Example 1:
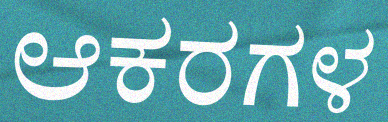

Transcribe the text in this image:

ಆಕರಗಳ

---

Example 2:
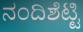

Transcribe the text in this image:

ನಂದಿಶೆಟ್ಟಿ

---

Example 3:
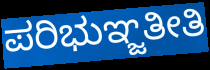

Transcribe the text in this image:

ಪರಿಭುಞ್ಜತೀತಿ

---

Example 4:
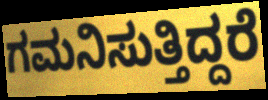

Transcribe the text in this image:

ಗಮನಿಸುತ್ತಿದ್ದರೆ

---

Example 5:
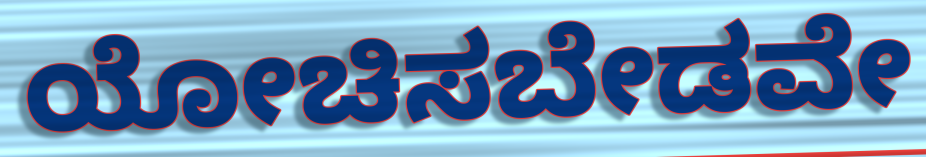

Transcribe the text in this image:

ಯೋಚಿಸಬೇಡವೇ